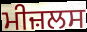
ਮੀਜ਼ਲਸ